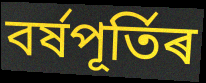
বৰ্ষপূৰ্তিৰ